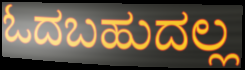
ಓದಬಹುದಲ್ಲ